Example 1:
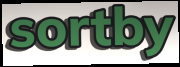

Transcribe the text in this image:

sortby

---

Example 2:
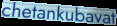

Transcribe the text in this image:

chetankubavat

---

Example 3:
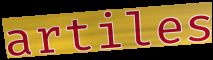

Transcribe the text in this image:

artiles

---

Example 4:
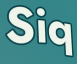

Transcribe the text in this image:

Siq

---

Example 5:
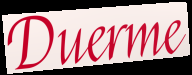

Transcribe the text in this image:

Duerme